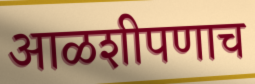
आळशीपणाच